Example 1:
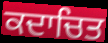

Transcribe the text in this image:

ਕਦਾਚਿਤ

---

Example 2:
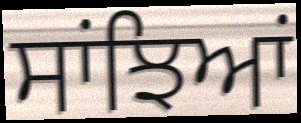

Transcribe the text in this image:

ਸਾਂਝਿਆਂ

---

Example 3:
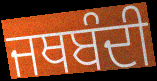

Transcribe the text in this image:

ਜਥਬੰਦੀ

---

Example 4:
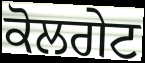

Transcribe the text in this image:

ਕੋਲਗੇਟ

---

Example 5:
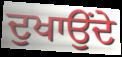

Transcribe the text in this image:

ਦੁਖਾਉਂਦੇ